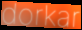
dorkar